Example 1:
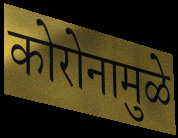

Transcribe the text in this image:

कोरोनामुळे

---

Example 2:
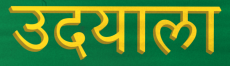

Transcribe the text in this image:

उदयाला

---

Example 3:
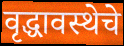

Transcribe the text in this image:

वृद्धावस्थेचे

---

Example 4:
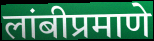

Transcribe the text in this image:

लांबीप्रमाणे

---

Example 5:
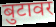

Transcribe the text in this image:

बुटावर